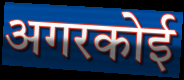
अगरकोई